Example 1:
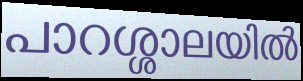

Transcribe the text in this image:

പാറശ്ശാലയിൽ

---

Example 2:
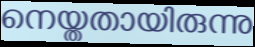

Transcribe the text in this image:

നെയ്തതായിരുന്നു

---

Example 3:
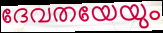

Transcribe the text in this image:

ദേവതയേയും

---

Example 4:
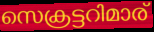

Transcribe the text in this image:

സെക്രട്ടറിമാര്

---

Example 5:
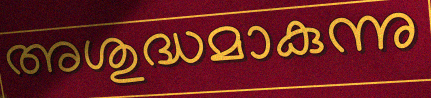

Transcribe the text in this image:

അശുദ്ധമാകുന്നു